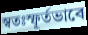
স্বতঃস্ফূৰ্তভাবে